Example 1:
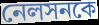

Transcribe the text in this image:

নেলসনকে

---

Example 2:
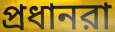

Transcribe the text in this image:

প্রধানরা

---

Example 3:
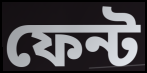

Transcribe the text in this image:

ফেন্ট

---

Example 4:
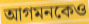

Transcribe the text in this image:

আগমনকেও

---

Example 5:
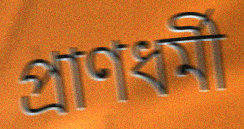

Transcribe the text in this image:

প্রাণধর্মী